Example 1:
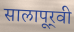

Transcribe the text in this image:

सालापूर्वी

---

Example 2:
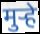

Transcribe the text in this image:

मुऱ्हे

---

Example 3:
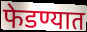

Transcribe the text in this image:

फेडण्यात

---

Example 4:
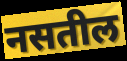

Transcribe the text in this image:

नसतील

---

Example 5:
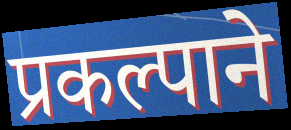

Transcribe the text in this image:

प्रकल्पाने